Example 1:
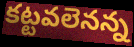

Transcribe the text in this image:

కట్టవలెనన్న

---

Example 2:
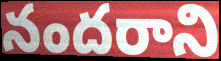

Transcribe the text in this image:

నందరాని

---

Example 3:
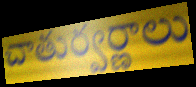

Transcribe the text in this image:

చాతుర్వర్ణాలు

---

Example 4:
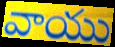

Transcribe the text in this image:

వాయు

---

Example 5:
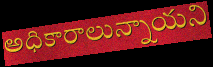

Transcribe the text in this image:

అధికారాలున్నాయని